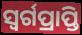
ସ୍ଵର୍ଗପ୍ରାପ୍ତି